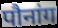
पौनांग